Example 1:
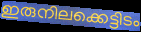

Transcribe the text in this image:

ഇരുനിലക്കെട്ടിടം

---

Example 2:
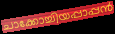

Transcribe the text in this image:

ചാക്കോച്ചിയപ്പാപ്പൻ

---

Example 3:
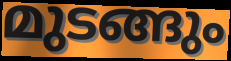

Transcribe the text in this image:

മുടങ്ങും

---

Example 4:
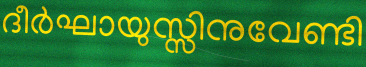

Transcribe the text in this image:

ദീർഘായുസ്സിനുവേണ്ടി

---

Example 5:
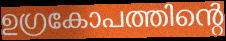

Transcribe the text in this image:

ഉഗ്രകോപത്തിന്റെ